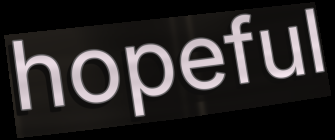
hopeful